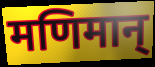
मणिमान्